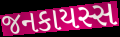
જનકાયસ્સ